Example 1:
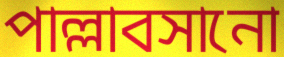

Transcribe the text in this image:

পাল্লাবসানো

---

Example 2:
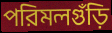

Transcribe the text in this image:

পরিমলগুঁড়ি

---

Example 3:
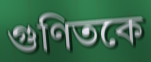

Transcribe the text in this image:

গুণিতকে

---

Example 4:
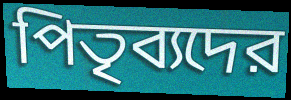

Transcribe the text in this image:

পিতৃব্যদের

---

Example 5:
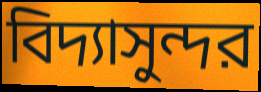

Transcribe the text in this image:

বিদ্যাসুন্দর